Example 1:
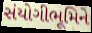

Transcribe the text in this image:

સંયોગીભૂમિને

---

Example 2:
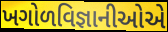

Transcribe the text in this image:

ખગોળવિજ્ઞાનીઓએ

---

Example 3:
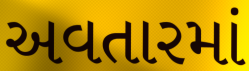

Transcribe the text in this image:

અવતારમાં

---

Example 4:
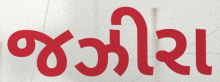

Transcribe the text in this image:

જઝીરા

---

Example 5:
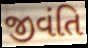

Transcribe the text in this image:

જીવંતિ